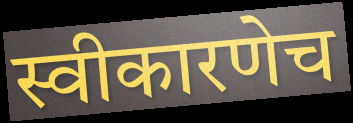
स्वीकारणेच